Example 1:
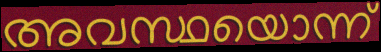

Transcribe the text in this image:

അവസ്ഥയൊന്ന്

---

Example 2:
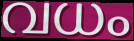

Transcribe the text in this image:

വധം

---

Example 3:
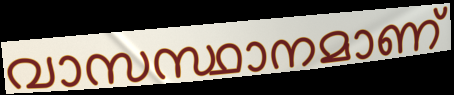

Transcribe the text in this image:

വാസസ്ഥാനമാണ്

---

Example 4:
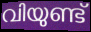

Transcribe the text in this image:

വിയുണ്ട്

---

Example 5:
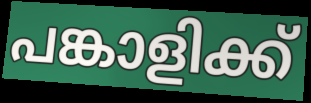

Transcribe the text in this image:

പങ്കാളിക്ക്